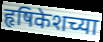
हृषिकेशच्या